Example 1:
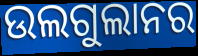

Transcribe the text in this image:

ଉଲଗୁଲାନର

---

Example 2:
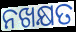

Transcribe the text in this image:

ନଖକ୍ଷତ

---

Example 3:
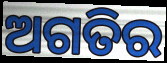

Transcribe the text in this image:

ଅଗତିର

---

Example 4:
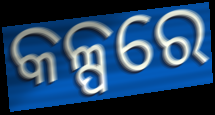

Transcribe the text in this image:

କଳ୍ପରେ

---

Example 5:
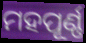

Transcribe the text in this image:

ମହପୂର୍ଣ୍ଣ